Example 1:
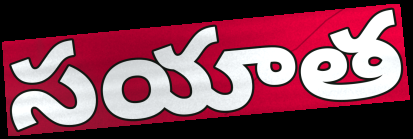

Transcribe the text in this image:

సయాత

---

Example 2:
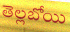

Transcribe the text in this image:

తెల్లబోయి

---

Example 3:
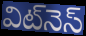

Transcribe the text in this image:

విట్‌నెస్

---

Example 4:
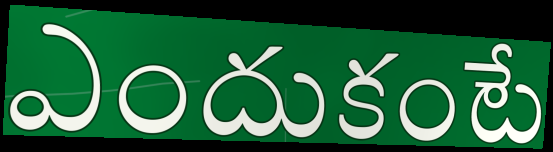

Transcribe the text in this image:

ఎందుకంటే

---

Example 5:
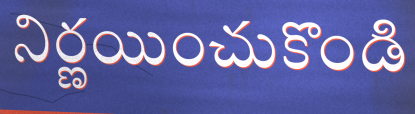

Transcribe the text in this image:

నిర్ణయించుకొండి